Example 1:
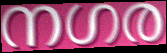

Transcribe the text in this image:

നഗര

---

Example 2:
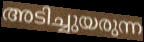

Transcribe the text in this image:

അടിച്ചുയരുന്ന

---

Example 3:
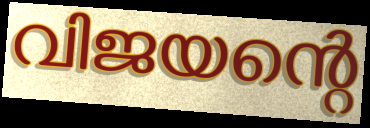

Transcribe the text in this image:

വിജയന്റെ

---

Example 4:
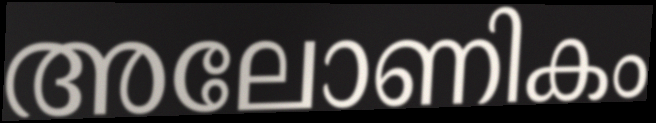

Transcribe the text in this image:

അലോണികം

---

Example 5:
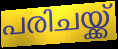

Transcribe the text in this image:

പരിചയ്ക്ക്